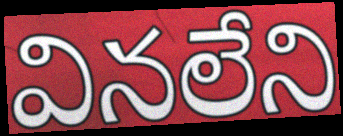
వినలేని